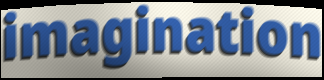
imagination